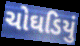
ચોઘડિયું